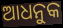
ଆଧନୁକ